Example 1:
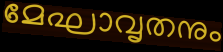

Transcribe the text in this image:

മേഘാവൃതനും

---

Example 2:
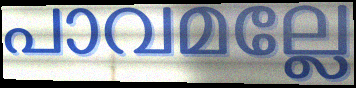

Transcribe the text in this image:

പാവമല്ലേ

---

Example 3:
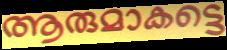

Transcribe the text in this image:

ആരുമാകട്ടെ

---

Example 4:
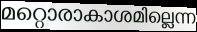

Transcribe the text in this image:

മറ്റൊരാകാശമില്ലെന്ന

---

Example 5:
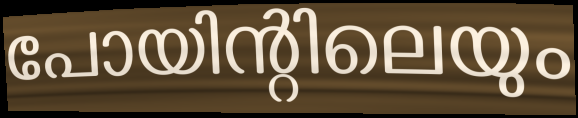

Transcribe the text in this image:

പോയിന്റിലെയും